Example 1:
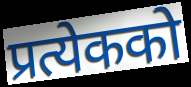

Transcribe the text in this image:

प्रत्येकको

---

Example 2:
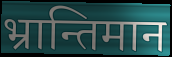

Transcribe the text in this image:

भ्रान्तिमान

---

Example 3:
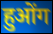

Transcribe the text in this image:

हुओंग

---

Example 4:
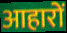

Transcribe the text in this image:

आहारों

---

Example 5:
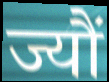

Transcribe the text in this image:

ज्यौं